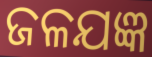
ଜଳଯଜ୍ଞ